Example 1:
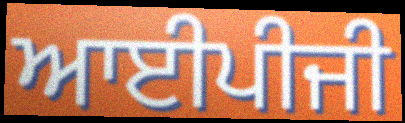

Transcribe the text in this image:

ਆਈਪੀਜੀ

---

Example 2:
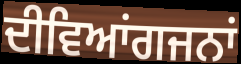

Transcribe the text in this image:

ਦੀਵਿਆਂਗਜਨਾਂ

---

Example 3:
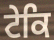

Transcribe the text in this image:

ਟੇਕਿ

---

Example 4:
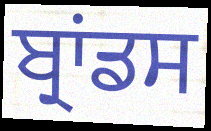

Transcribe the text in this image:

ਬ੍ਰਾਂਡਸ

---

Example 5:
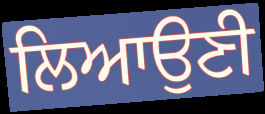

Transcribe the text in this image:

ਲਿਆਉਣੀ